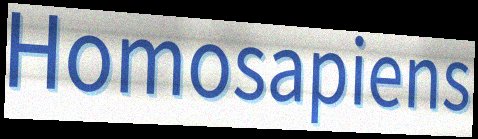
Homosapiens